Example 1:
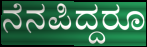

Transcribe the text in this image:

ನೆನಪಿದ್ದರೂ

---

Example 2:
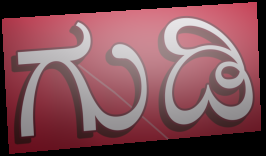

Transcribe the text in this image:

ಗುಡಿ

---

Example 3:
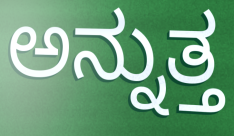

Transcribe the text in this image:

ಅನ್ನುತ್ತ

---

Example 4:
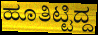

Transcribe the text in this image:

ಹೂತಿಟ್ಟಿದ್ದ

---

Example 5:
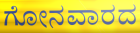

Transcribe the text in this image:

ಗೋನವಾರದ